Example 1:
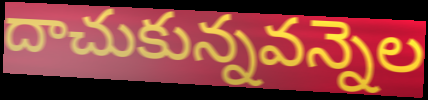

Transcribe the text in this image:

దాచుకున్నవన్నెల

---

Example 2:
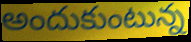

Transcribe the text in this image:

అందుకుంటున్న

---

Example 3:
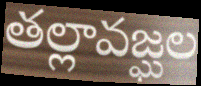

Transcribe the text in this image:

తల్లావజ్ఘల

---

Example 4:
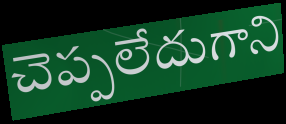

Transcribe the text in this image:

చెప్పలేదుగాని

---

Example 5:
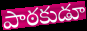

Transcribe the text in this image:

పాఠకుడూ